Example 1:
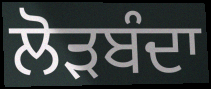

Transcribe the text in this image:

ਲੋੜਬੰਦਾ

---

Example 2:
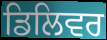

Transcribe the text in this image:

ਡਿਲਿਵਰ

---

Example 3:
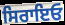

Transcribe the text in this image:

ਸਿਰਾਇਓ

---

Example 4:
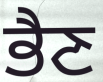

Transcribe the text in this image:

ਭੈਣ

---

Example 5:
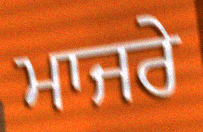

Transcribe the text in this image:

ਮਾਜਰੇ